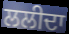
ਲਲੀਦਾ